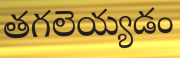
తగలెయ్యడం